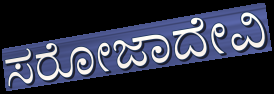
ಸರೋಜಾದೇವಿ